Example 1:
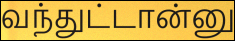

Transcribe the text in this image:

வந்துட்டான்னு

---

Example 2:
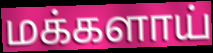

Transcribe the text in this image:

மக்களாய்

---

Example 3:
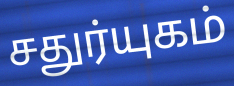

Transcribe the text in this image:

சதுர்யுகம்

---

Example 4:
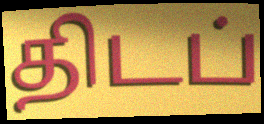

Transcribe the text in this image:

திடப்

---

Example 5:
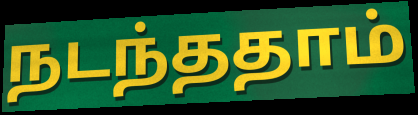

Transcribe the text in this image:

நடந்ததாம்